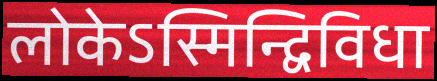
लोकेऽस्मिन्द्विविधा